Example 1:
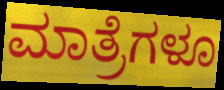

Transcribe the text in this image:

ಮಾತ್ರೆಗಳೂ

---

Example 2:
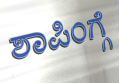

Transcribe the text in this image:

ಶಾಪಿಂಗ್ಗೆ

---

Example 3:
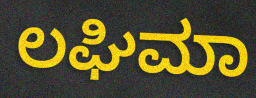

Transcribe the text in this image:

ಲಘಿಮಾ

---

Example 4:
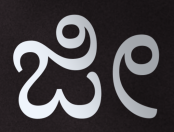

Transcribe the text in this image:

ಜೀ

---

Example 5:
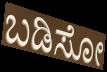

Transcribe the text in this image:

ಬಡಿಸೋ